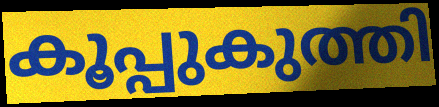
കൂപ്പുകുത്തി